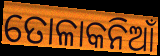
ତୋଳାକନିଆଁ